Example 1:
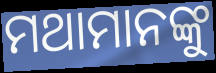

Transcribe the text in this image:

ମଥାମାନଙ୍କୁ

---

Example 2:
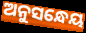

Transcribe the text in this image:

ଅନୁସନ୍ଧେୟ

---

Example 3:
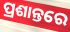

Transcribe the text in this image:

ପ୍ରଶାନ୍ତରେ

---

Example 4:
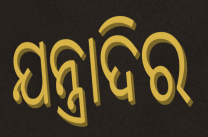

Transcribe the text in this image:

ଯନ୍ତ୍ରାଦିର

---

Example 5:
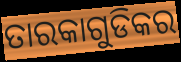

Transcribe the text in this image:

ତାରକାଗୁଡିକର